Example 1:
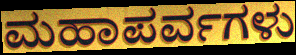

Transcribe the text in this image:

ಮಹಾಪರ್ವಗಳು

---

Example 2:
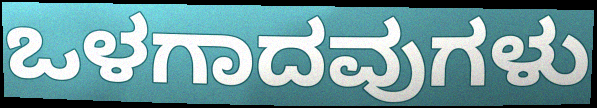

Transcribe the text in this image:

ಒಳಗಾದವುಗಳು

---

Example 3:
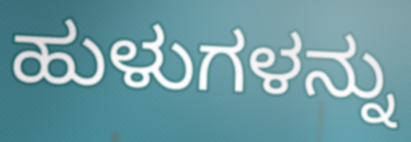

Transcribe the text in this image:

ಹುಳುಗಳನ್ನು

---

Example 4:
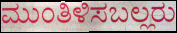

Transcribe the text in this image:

ಮುಂತಿಳಿಸಬಲ್ಲರು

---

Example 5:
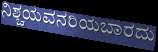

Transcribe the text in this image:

ನಿಶ್ಚಯವನರಿಯಬಾರದು